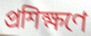
প্রশিক্ষণে